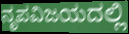
ನೃಪವಿಜಯದಲ್ಲಿ